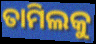
ତାମିଲକୁ